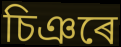
চিঞৰে